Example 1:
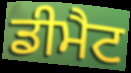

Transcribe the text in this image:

ਡੀਮੈਟ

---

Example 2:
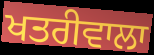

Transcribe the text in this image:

ਖਤਰੀਵਾਲਾ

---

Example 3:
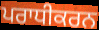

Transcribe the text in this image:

ਪਰਾਧੀਕਰਨ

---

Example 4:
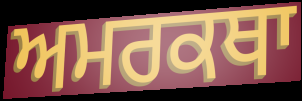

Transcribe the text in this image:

ਅਮਰਕਥਾ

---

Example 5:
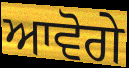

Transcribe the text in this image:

ਆਵੋਗੇ